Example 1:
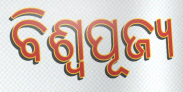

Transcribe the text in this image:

ବିଶ୍ୱପୂଜ୍ୟ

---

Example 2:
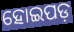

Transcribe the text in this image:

ହୋଇପଡ଼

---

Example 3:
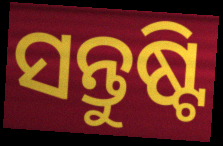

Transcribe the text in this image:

ସନ୍ତୁଷ୍ଟି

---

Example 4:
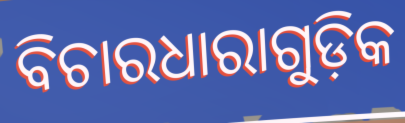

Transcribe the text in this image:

ବିଚାରଧାରାଗୁଡ଼ିକ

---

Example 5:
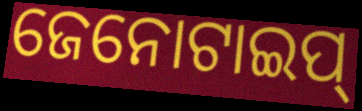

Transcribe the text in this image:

ଜେନୋଟାଇପ୍